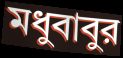
মধুবাবুর